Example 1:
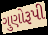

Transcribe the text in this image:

ગુણોરૂપી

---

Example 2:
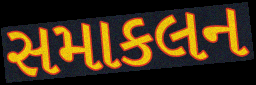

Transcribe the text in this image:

સમાકલન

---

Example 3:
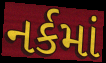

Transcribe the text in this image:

નર્કમાં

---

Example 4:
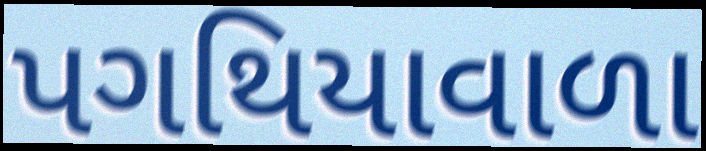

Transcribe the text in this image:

પગથિયાવાળા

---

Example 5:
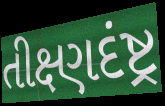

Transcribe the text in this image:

તીક્ષ્ણદંષ્ટ્ર